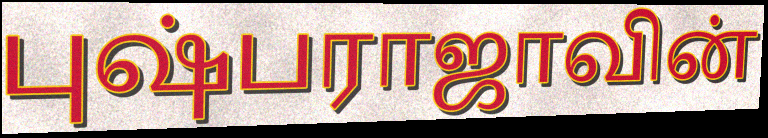
புஷ்பராஜாவின்